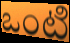
ఒంటి